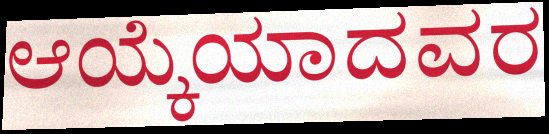
ಆಯ್ಕೆಯಾದವರ